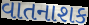
વાતનાશક